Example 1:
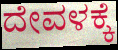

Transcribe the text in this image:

ದೇವಳಕ್ಕೆ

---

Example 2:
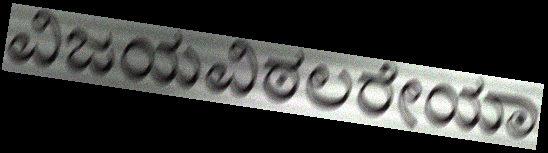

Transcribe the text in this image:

ವಿಜಯವಿಠಲರೇಯಾ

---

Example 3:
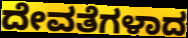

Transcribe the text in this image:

ದೇವತೆಗಳಾದ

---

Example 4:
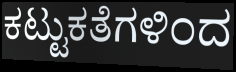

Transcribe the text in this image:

ಕಟ್ಟುಕತೆಗಳಿಂದ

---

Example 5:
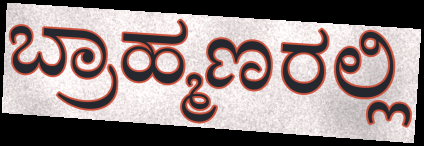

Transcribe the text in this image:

ಬ್ರಾಹ್ಮಣರಲ್ಲಿ